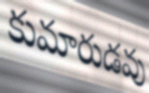
కుమారుడవు